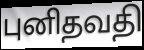
புனிதவதி